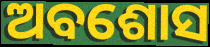
ଅବଶୋସ